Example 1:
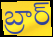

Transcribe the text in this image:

బ్రార్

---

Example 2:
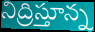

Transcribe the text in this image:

నిద్రిస్తూన్న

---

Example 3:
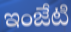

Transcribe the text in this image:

ఇంజేటి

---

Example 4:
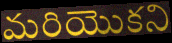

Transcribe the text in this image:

మరియొకని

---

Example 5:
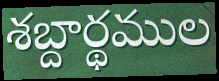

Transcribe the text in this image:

శబ్దార్థముల